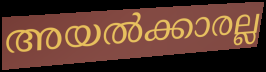
അയൽക്കാരല്ല